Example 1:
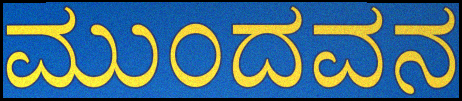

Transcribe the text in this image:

ಮುಂದವನ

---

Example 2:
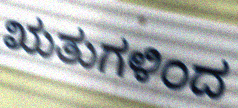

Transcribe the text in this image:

ಋತುಗಳಿಂದ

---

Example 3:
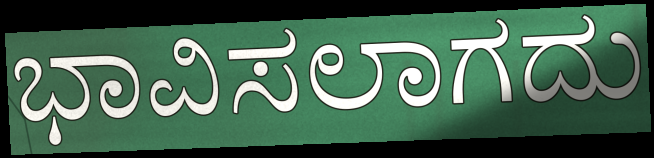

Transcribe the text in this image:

ಭಾವಿಸಲಾಗದು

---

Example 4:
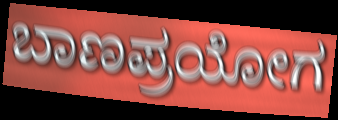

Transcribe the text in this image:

ಬಾಣಪ್ರಯೋಗ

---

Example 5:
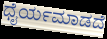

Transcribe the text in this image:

ಧೈರ್ಯಮಾಡದೆ